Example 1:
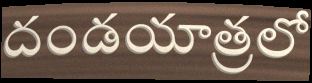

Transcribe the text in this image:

దండయాత్రలో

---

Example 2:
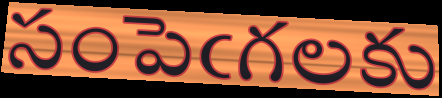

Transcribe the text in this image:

సంపెఁగలకు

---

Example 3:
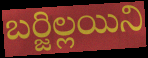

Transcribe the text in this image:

బర్జిల్లయిని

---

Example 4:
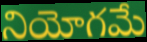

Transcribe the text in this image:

నియోగమే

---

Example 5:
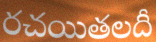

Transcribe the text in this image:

రచయితలదీ